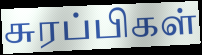
சுரப்பிகள்